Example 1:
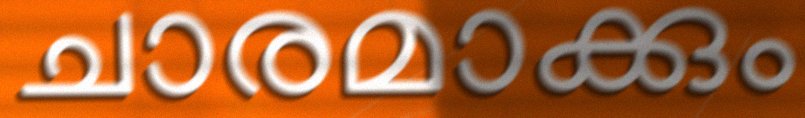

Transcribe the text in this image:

ചാരമാക്കും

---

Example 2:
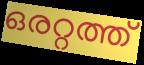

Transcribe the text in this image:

ഒരറ്റത്ത്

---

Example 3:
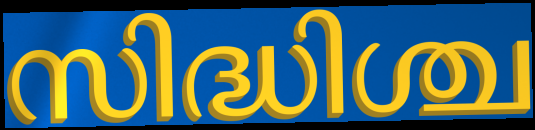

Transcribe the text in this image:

സിദ്ധിശ്ച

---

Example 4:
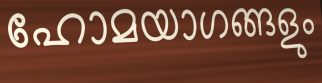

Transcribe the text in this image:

ഹോമയാഗങ്ങളും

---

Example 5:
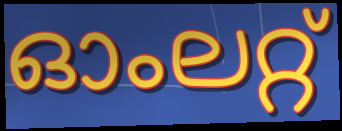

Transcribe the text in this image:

ഓംലറ്റ്